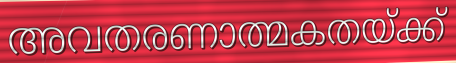
അവതരണാത്മകതയ്ക്ക്